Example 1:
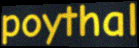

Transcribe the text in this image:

poythal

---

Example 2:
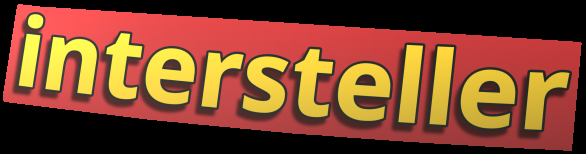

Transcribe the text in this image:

intersteller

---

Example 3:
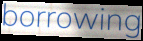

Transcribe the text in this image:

borrowing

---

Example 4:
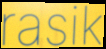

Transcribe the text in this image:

rasik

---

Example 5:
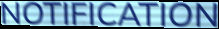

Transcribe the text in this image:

NOTIFICATION